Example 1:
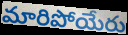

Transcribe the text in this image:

మారిపోయేరు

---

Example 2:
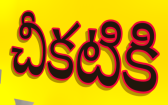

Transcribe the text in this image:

చీకటికి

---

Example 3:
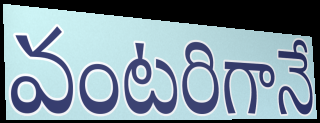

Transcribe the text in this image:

వంటరిగానే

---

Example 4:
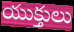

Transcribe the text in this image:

యుక్తులు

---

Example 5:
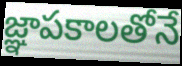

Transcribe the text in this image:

జ్ఞాపకాలతోనే